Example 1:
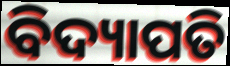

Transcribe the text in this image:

ବିଦ୍ୟାପତି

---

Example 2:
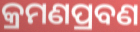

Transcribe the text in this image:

କ୍ରମଣପ୍ରବଣ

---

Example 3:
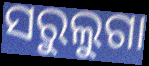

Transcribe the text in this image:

ସରୁଲୁଗା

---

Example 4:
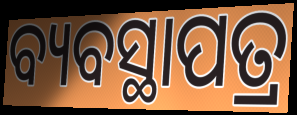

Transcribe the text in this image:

ବ୍ୟବସ୍ଥାପତ୍ର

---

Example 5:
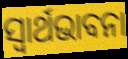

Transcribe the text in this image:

ସ୍ଵାର୍ଥଭାବନା